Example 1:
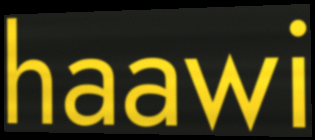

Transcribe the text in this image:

haawi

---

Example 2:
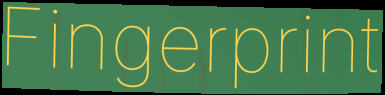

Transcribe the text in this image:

Fingerprint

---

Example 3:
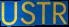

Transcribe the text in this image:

USTR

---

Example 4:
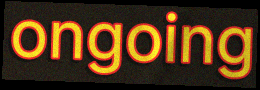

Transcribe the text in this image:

ongoing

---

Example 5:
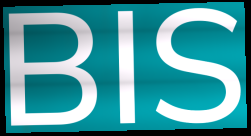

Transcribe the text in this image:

BIS